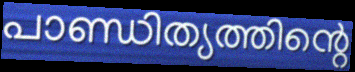
പാണ്ഡിത്യത്തിന്റെ